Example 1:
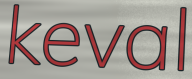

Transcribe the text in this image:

keval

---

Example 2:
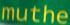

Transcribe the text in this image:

muthe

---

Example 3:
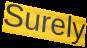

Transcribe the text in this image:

Surely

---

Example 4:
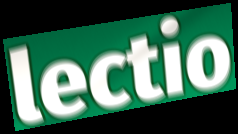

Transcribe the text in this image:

lectio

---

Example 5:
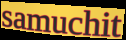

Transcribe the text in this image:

samuchit